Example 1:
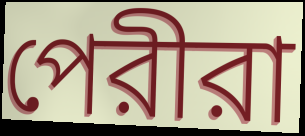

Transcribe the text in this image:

পেরীরা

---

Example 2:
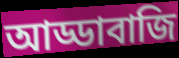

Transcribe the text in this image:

আড্ডাবাজি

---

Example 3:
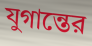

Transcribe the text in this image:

যুগান্তের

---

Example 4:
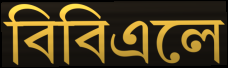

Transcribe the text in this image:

বিবিএলে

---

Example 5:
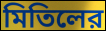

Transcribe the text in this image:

মিতিলের